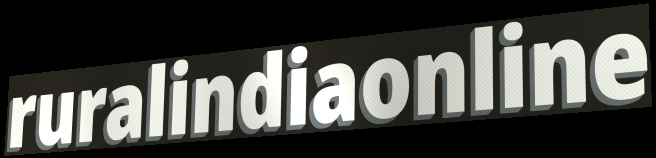
ruralindiaonline